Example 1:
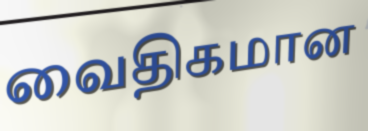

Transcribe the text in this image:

வைதிகமான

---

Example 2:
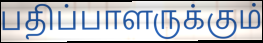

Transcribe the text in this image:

பதிப்பாளருக்கும்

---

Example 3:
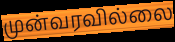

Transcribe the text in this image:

முன்வரவில்லை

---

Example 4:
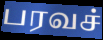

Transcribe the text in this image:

பரவச்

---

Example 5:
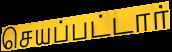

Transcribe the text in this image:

செயப்பட்டார்